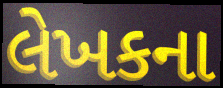
લેખકના